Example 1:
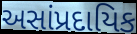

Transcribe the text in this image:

અસાંપ્રદાયિક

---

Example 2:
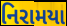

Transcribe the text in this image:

નિરામયા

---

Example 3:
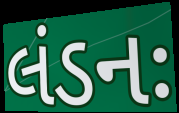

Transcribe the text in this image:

લંડનઃ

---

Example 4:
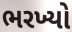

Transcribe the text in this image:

ભરખ્યો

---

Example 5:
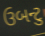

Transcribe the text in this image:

ઉબન્ટુ